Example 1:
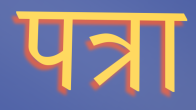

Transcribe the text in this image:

पत्रा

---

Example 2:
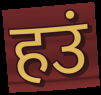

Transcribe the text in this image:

हउं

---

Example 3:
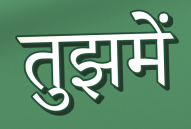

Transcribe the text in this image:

तुझमें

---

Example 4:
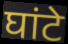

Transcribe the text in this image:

घांटे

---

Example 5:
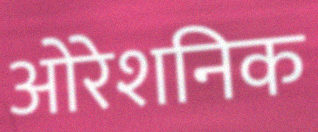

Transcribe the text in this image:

ओरेशनिक